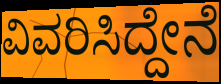
ವಿವರಿಸಿದ್ದೇನೆ